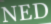
NED